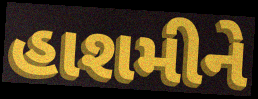
હાશમીને